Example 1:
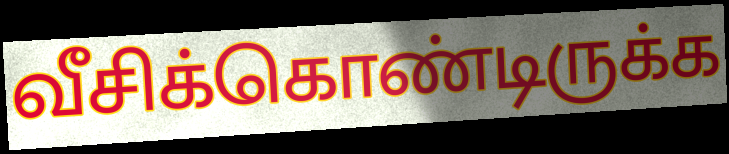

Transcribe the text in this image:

வீசிக்கொண்டிருக்க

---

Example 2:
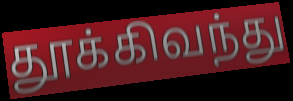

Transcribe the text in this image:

தூக்கிவந்து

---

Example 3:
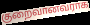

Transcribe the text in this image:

குறைவானவராக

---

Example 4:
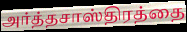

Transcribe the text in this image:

அர்த்தசாஸ்திரத்தை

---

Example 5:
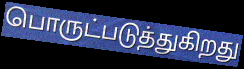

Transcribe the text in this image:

பொருட்படுத்துகிறது